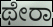
ಥೇರಾ